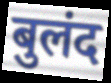
बुलंद